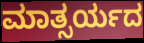
ಮಾತ್ಸರ್ಯದ